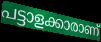
പട്ടാളക്കാരാണ്